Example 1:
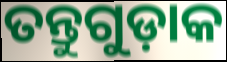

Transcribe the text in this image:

ତନ୍ତୁଗୁଡ଼ାକ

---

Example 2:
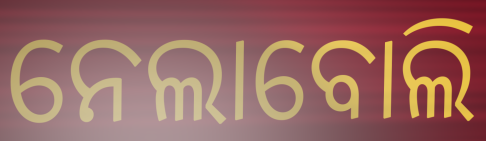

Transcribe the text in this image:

ନେଲାବୋଲି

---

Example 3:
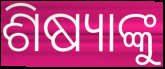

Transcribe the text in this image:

ଶିଷ୍ୟାଙ୍କୁ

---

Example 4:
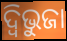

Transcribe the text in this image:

ଦ୍ଵିଭୁଜା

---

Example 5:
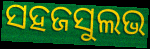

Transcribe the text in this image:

ସହଜସୁଲଭ